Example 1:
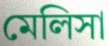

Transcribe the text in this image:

মেলিসা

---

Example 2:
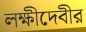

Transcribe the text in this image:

লক্ষীদেবীর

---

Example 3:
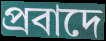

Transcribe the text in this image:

প্রবাদে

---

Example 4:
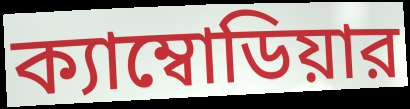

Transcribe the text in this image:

ক্যাম্বোডিয়ার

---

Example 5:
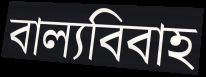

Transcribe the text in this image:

বাল্যবিবাহ